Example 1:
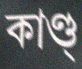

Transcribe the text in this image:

কাণ্ড্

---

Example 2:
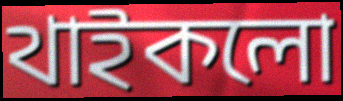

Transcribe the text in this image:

থাইকলো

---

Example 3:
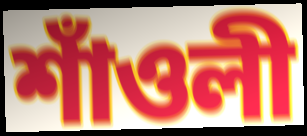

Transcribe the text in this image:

শাঁওলী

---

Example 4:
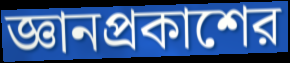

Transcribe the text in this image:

জ্ঞানপ্রকাশের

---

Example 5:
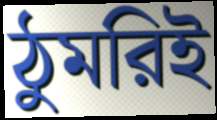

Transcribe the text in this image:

ঠুমরিই